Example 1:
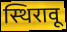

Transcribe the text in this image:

स्थिरावू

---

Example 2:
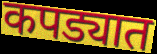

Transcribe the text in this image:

कपड्यात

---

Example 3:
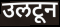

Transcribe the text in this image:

उलटून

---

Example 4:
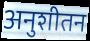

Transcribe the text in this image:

अनुशीतन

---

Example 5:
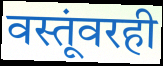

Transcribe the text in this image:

वस्तूंवरही